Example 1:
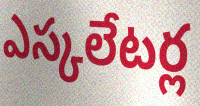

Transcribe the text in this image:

ఎస్కలేటర్ల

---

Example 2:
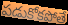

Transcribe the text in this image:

పడుకోకపోతే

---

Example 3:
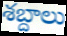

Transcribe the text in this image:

శబ్దాలు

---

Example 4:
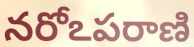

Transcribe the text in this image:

నరోఽపరాణి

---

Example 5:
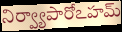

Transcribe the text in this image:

నిర్వ్యాపారోఽహమ్